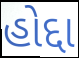
હોદ્દા